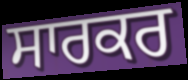
ਸਾਰਕਰ